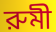
ৰুমী